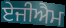
ਏਜੀਐਮ